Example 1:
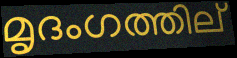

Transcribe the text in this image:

മൃദംഗത്തില്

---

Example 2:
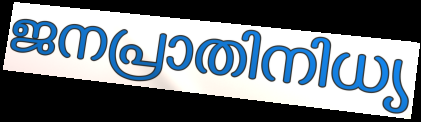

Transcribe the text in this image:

ജനപ്രാതിനിധ്യ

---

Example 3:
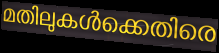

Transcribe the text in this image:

മതിലുകൾക്കെതിരെ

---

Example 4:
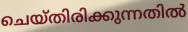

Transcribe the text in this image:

ചെയ്തിരിക്കുന്നതിൽ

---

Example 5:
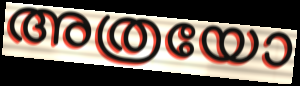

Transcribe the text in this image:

അത്രയോ